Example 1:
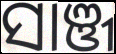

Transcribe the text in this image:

ସାଞ୍ଜ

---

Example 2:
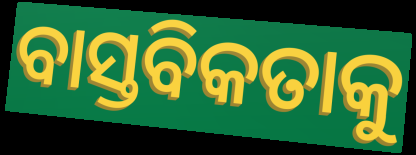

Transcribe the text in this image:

ବାସ୍ତବିକତାକୁ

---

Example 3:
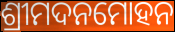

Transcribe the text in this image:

ଶ୍ରୀମଦନମୋହନ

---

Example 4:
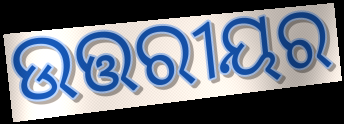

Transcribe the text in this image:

ଉତ୍ତରୀୟର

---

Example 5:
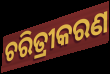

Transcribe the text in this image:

ଚରିତ୍ରୀକରଣ